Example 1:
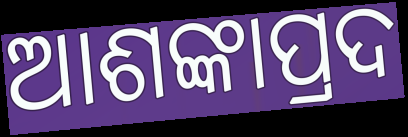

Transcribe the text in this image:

ଆଶଙ୍କାପ୍ରଦ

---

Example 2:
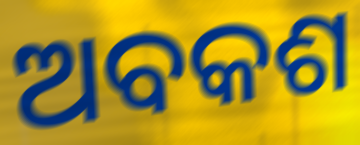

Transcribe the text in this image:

ଅବକଶ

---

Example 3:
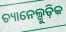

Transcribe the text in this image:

ଚ୍ୟାନେଲ୍ଗୁଡ଼ିକ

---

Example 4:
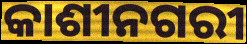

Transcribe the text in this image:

କାଶୀନଗରୀ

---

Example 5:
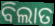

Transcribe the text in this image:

ବିଲାତ